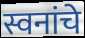
स्वनांचे